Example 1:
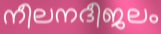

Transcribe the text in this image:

നീലനദീജലം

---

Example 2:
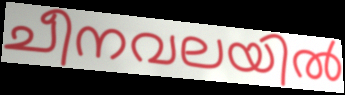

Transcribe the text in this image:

ചീനവലയിൽ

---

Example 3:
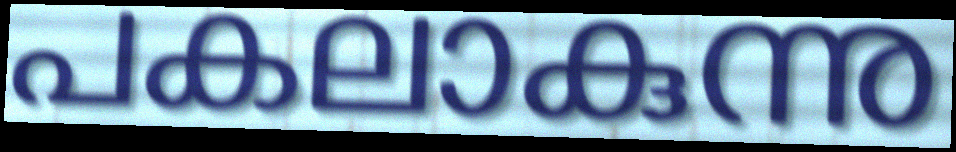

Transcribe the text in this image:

പകലാകുന്നു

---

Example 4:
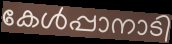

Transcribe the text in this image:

കേൾപ്പാനാടി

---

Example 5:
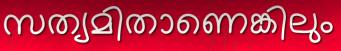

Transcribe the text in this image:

സത്യമിതാണെങ്കിലും